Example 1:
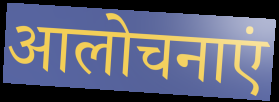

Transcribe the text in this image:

आलोचनाएं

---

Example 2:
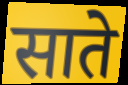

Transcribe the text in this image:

साते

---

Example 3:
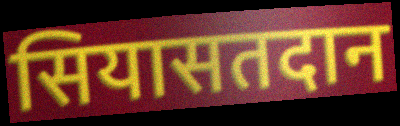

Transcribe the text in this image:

सियासतदान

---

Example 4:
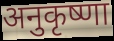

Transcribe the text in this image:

अनुकृष्णा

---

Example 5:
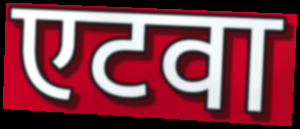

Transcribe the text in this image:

एटवा